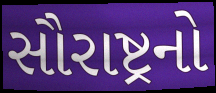
સૌરાષ્ટ્રનો